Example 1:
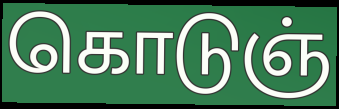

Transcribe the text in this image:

கொடுஞ்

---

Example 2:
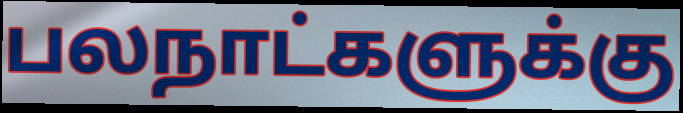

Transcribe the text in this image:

பலநாட்களுக்கு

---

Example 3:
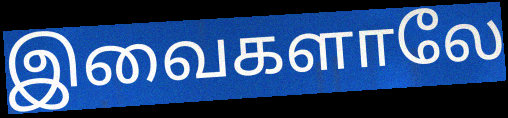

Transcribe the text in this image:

இவைகளாலே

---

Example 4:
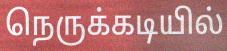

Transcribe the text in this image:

நெருக்கடியில்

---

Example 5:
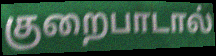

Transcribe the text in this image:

குறைபாடால்